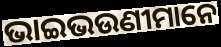
ଭାଇଭଉଣୀମାନେ